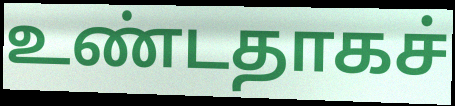
உண்டதாகச்